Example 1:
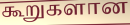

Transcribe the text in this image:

கூறுகளான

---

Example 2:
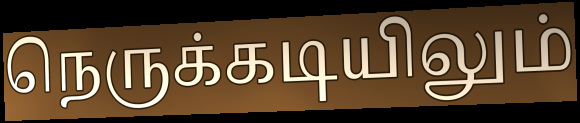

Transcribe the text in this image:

நெருக்கடியிலும்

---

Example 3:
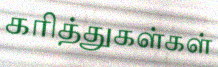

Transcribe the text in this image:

கரித்துகள்கள்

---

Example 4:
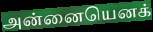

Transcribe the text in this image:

அன்னையெனக்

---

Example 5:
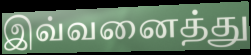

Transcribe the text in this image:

இவ்வனைத்து